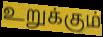
உறுக்கும்